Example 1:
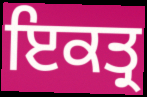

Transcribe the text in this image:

ਇਕਤ੍ਰ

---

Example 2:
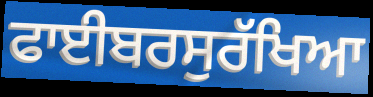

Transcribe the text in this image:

ਫਾਈਬਰਸੁਰੱਖਿਆ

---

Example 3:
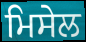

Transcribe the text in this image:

ਮਿਸੇਲ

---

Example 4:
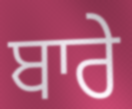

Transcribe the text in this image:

ਬਾਰੇ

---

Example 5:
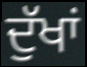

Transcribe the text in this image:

ਦੁੱਖਾਂ